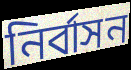
নিৰ্বাসন